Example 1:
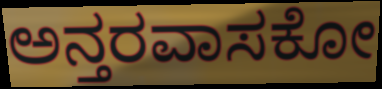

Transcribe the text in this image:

ಅನ್ತರವಾಸಕೋ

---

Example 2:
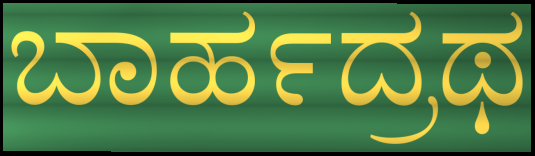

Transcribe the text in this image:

ಬಾರ್ಹದ್ರಥ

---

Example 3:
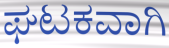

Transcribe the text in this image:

ಘಟಕವಾಗಿ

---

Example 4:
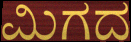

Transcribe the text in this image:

ಮಿಗದ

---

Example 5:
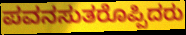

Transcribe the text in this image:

ಪವನಸುತರೊಪ್ಪಿದರು